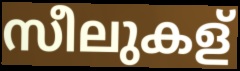
സീലുകള്